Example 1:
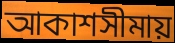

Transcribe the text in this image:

আকাশসীমায়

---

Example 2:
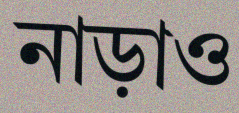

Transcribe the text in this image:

নাড়াও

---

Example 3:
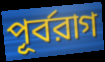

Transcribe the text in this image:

পূর্বরাগ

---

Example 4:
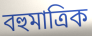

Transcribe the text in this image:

বহুমাত্রিক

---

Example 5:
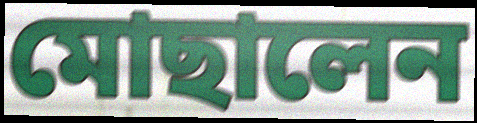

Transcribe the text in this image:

মোছালেন